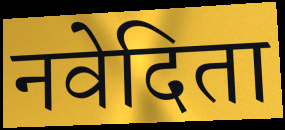
नवेदिता